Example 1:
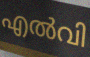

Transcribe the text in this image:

എൽവി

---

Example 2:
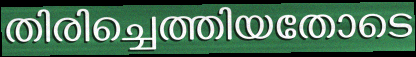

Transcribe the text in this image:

തിരിച്ചെത്തിയതോടെ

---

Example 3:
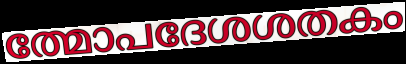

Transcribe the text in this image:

ത്മോപദേശശതകം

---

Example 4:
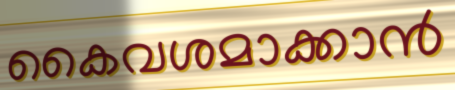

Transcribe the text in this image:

കൈവശമാക്കാൻ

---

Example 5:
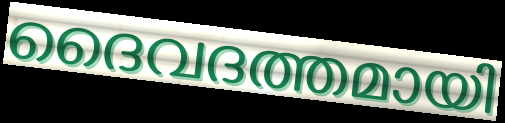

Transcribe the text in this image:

ദൈവദത്തമായി